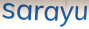
sarayu